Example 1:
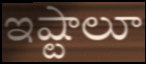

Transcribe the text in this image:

ఇష్టాలూ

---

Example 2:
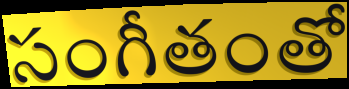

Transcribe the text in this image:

సంగీతంతో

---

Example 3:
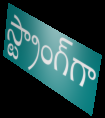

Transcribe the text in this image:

స్ట్రాంగ్‌గా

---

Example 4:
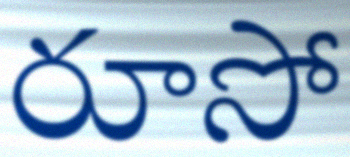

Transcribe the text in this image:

రూసో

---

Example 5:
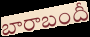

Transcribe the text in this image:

బారాబందీ